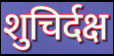
शुचिर्दक्ष